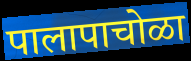
पालापाचोळा